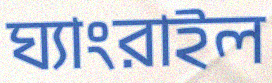
ঘ্যাংরাইল